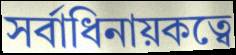
সর্বাধিনায়কত্বে